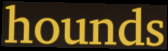
hounds